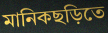
মানিকছড়িতে